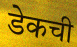
डेकची